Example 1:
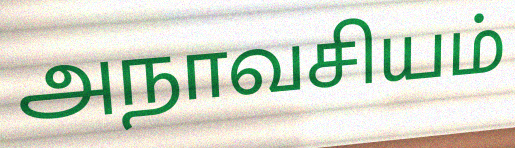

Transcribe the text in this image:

அநாவசியம்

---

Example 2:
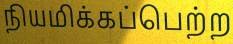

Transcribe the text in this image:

நியமிக்கப்பெற்ற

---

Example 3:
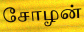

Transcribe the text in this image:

சோழன்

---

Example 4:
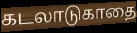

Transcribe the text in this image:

கடலாடுகாதை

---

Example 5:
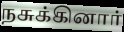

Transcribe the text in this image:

நசுக்கினார்